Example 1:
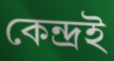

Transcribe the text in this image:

কেন্দ্ৰই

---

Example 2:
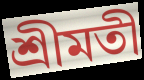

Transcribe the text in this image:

শ্ৰীমতী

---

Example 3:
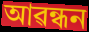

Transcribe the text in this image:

আৱন্ধন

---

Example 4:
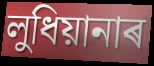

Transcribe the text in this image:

লুধিয়ানাৰ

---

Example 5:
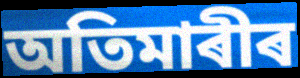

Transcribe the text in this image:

অতিমাৰীৰ